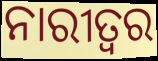
ନାରୀତ୍ୱର